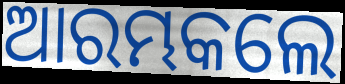
ଆରମ୍ଭକଲେ